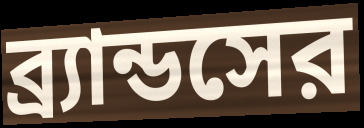
ব্র্যান্ডসের